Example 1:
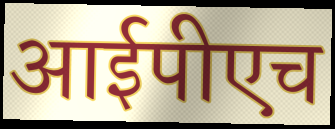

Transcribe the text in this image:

आईपीएच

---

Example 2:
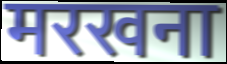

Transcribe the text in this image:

मरखना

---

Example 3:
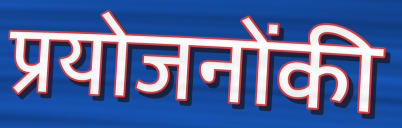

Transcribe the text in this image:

प्रयोजनोंकी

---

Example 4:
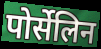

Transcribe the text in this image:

पोर्सेलिन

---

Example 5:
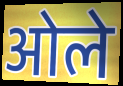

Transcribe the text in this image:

ओले